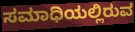
ಸಮಾಧಿಯಲ್ಲಿರುವ